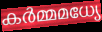
കർമ്മമധ്യേ